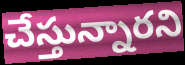
చేస్తున్నారని